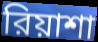
রিয়াশা